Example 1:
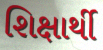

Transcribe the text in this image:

શિક્ષાર્થી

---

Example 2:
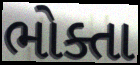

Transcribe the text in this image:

ભોક્તા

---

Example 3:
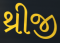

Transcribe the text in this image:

થ્રીજી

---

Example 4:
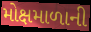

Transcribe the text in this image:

મોક્ષમાળાની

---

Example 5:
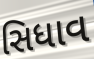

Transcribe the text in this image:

સિધાવ